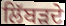
ਲਿੱਬੜਦੇ